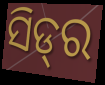
ସିଡ୍‌ର